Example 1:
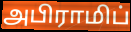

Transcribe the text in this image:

அபிராமிப்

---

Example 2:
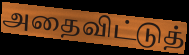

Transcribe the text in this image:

அதைவிட்டுத்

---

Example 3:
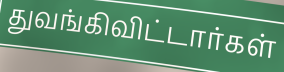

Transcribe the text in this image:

துவங்கிவிட்டார்கள்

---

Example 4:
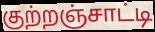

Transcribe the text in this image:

குற்றஞ்சாட்டி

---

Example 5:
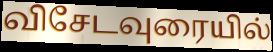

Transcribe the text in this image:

விசேடவுரையில்